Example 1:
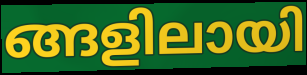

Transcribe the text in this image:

ങ്ങളിലായി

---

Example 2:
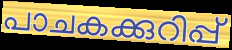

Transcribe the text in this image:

പാചകക്കുറിപ്പ്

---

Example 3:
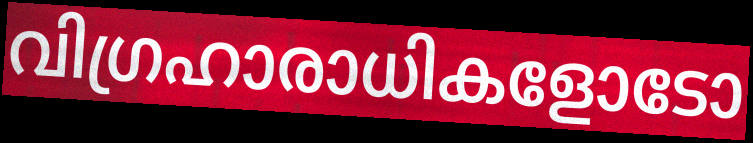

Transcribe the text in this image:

വിഗ്രഹാരാധികളോടോ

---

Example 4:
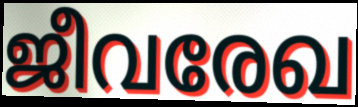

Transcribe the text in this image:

ജീവരേഖ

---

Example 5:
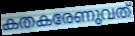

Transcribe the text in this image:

കതകരേണുവത്